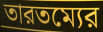
তারতম্যের